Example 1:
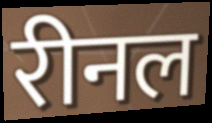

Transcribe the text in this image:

रीनल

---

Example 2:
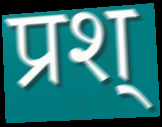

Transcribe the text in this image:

प्रश्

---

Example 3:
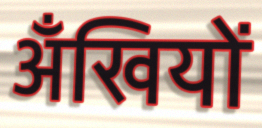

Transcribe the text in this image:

अँखियों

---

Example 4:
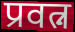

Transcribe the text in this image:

प्रवत्न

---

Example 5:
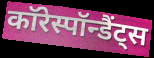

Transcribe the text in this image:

कॉरेस्पॉन्डैंट्स